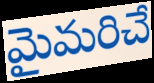
మైమరిచే